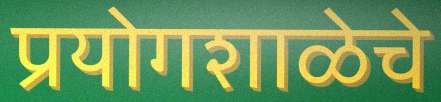
प्रयोगशाळेचे